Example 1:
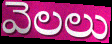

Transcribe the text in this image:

వెలలు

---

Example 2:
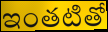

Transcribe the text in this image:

ఇంతటితో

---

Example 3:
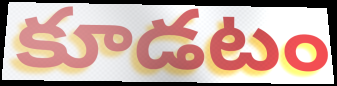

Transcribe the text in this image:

కూడటం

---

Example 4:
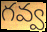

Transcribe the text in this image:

గవ్వ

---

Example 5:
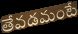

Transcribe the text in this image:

తేవడమంటే